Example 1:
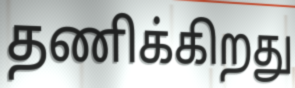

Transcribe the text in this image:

தணிக்கிறது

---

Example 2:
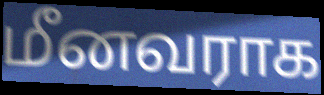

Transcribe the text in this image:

மீனவராக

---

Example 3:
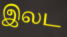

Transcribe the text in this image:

இலட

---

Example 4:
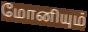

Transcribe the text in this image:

மோனியும்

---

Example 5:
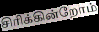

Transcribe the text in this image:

சிரிக்கின்றோம்